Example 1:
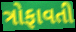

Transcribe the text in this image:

ત્રોફાવતી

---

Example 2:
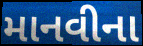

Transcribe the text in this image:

માનવીના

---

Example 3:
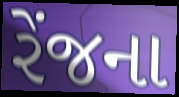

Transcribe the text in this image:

રેંજના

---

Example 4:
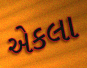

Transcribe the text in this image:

એકલા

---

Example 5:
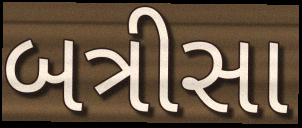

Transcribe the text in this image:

બત્રીસા